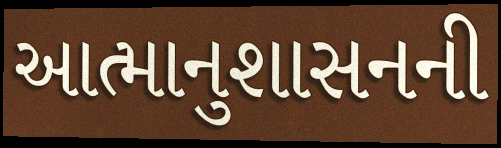
આત્માનુશાસનની